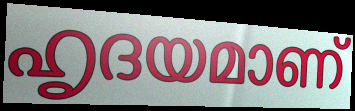
ഹൃദയമാണ്